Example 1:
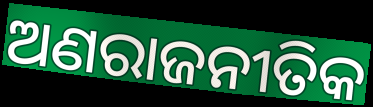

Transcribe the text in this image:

ଅଣରାଜନୀତିକ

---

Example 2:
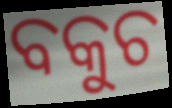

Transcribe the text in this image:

ବକୁଚ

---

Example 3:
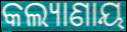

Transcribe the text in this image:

କଲ୍ୟାଣାୟ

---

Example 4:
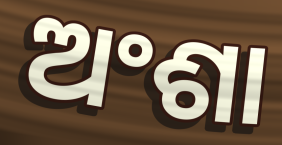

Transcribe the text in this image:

ଅଂଶା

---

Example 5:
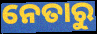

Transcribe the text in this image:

ନେତାରୁ